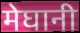
मेघानी